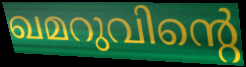
ഖമറുവിന്റെ